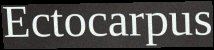
Ectocarpus